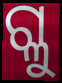
ଗ୍ଳୁ